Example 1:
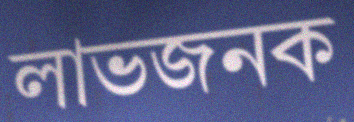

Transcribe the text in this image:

লাভজনক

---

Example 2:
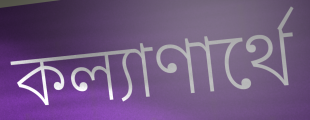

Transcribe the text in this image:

কল্যাণার্থে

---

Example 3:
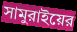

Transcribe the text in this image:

সামুরাইয়ের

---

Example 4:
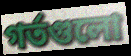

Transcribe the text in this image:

গর্তগুলো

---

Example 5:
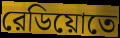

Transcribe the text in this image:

রেডিয়োতে